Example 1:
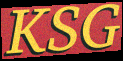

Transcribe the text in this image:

KSG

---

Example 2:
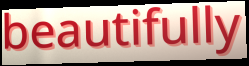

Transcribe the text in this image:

beautifully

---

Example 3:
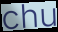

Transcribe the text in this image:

chu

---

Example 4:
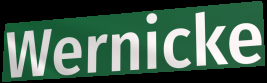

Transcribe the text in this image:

Wernicke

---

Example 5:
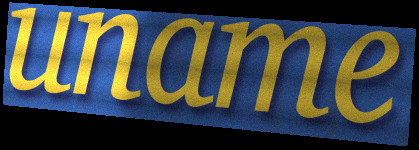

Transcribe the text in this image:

uname